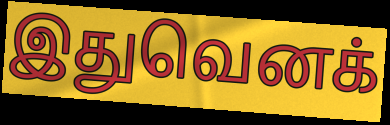
இதுவெனக்